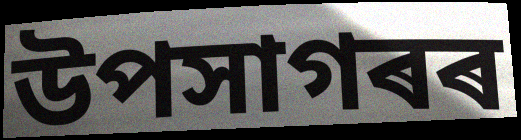
উপসাগৰৰ